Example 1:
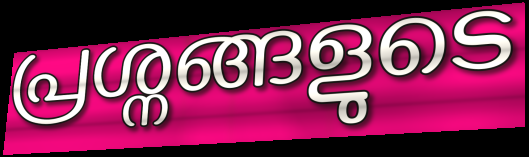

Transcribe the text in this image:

പ്രശ്നങ്ങളുടെ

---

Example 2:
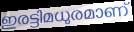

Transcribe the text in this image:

ഇരട്ടിമധുരമാണ്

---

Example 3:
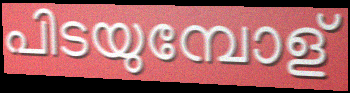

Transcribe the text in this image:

പിടയുമ്പോള്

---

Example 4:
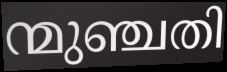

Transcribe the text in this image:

ന്മുഞ്ചതി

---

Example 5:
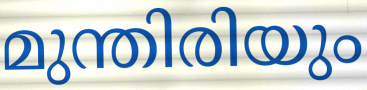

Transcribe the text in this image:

മുന്തിരിയും